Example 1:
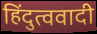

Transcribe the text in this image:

हिंदुत्ववादी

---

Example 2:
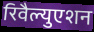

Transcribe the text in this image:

रिवैल्युएशन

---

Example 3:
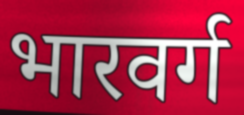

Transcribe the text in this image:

भारवर्ग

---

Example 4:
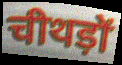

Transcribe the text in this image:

चीथड़ों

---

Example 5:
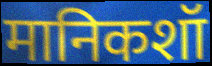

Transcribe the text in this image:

मानिकशॉ